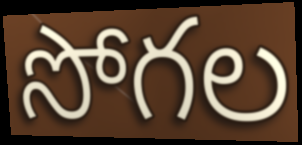
సోగల